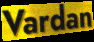
Vardan